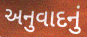
અનુવાદનું